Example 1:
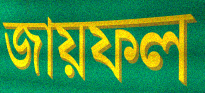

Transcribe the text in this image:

জায়ফল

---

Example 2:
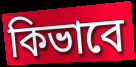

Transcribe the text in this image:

কিভাবে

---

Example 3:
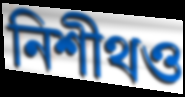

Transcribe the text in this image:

নিশীথও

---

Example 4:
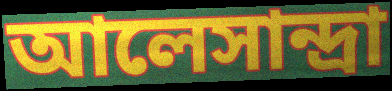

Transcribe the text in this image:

আলেসান্দ্রা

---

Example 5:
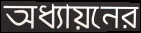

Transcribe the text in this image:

অধ্যায়নের